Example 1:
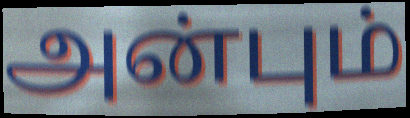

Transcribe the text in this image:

அன்பும்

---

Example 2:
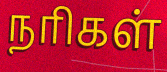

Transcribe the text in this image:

நரிகள்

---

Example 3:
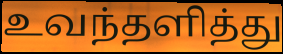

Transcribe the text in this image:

உவந்தளித்து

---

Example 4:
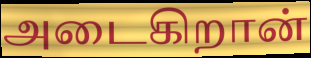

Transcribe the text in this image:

அடைகிறான்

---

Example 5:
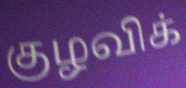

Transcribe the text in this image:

குழவிக்